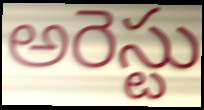
అరెస్టు